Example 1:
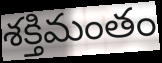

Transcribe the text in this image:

శక్తిమంతం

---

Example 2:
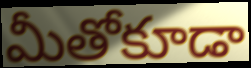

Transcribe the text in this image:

మీతోకూడా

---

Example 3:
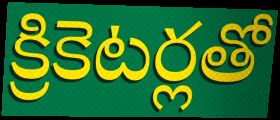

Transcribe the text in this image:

క్రికెటర్లతో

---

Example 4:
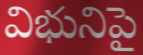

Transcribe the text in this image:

విభునిపై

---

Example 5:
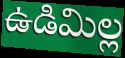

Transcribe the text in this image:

ఉడిమిల్ల